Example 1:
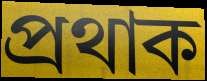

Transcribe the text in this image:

প্ৰথাক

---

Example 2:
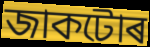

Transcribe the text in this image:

জাকটোৰ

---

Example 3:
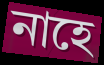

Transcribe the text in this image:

নাহে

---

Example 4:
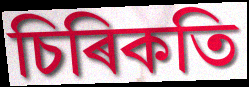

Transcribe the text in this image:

চিৰিকতি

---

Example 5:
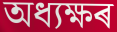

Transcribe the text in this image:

অধ্যক্ষৰ